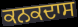
ਕਨਕਦਾਸ